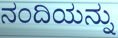
ನಂದಿಯನ್ನು